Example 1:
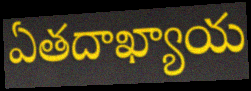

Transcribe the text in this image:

ఏతదాఖ్యాయ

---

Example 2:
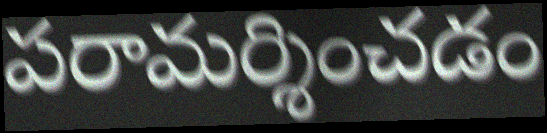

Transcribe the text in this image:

పరామర్శించడం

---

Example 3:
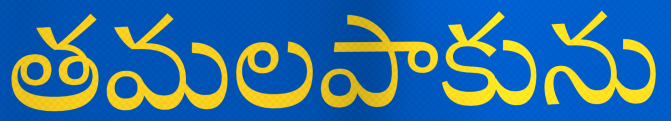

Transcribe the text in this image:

తమలపాకును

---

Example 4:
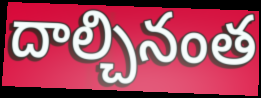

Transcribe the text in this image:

దాల్చినంత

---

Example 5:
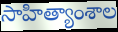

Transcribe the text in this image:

సాహిత్యాంశాల